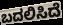
ಬದಲಿಸಿದೆ